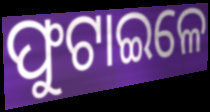
ଫୁଟାଇଳେ